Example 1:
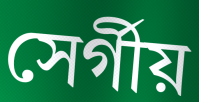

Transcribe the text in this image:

সের্গীয়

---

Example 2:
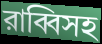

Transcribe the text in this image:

রাব্বিসহ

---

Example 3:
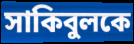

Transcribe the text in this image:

সাকিবুলকে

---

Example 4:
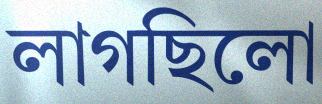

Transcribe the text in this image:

লাগছিলো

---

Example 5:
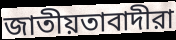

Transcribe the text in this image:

জাতীয়তাবাদীরা